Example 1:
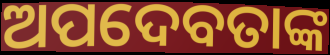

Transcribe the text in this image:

ଅପଦେବତାଙ୍କ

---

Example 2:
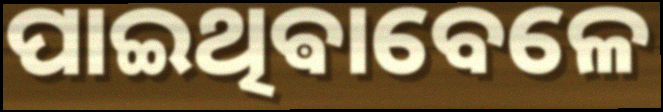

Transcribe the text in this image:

ପାଇଥିଵାବେଳେ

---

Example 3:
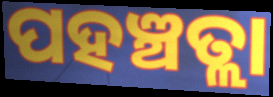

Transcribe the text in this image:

ପହଞ୍ଚତ୍ଲା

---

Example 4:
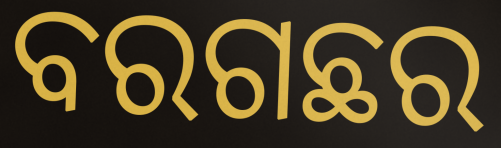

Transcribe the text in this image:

ବରଗଛର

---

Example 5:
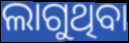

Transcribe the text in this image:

ଲାଗୁଥିବା